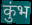
कुंभ